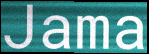
Jama